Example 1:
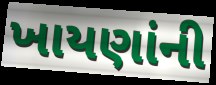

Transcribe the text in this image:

ખાયણાંની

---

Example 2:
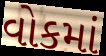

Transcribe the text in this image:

વોકમાં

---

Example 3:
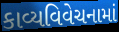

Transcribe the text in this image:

કાવ્યવિવેચનામાં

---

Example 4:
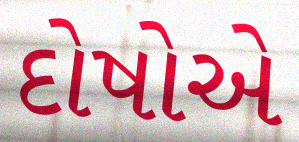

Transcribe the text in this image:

દોષોએ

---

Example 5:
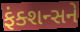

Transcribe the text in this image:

ફંક્શન્સને